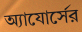
অ্যাযোর্সের